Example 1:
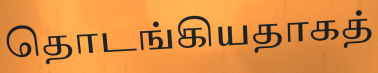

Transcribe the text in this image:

தொடங்கியதாகத்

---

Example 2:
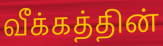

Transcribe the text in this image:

வீக்கத்தின்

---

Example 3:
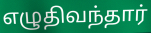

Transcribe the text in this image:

எழுதிவந்தார்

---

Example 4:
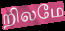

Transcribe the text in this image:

றிலமே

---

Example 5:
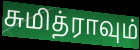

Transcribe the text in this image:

சுமித்ராவும்